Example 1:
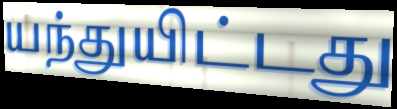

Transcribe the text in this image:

யந்துயிட்டது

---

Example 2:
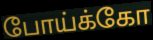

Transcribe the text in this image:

போய்க்கோ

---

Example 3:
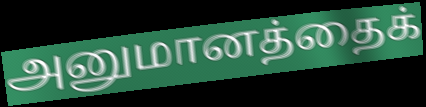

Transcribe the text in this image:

அனுமானத்தைக்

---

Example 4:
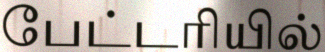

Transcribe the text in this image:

பேட்டரியில்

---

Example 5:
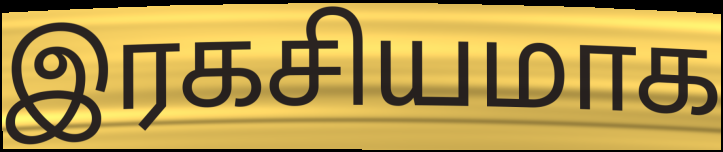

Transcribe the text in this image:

இரகசியமாக